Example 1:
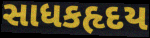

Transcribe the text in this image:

સાધકહૃદય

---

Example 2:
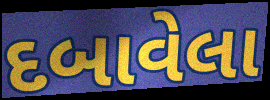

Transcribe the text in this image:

દબાવેલા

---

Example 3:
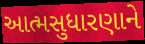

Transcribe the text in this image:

આત્મસુધારણાને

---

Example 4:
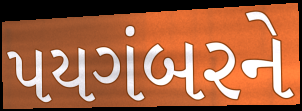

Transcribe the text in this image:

પયગંબરને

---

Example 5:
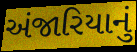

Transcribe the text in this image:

અંજારિયાનું